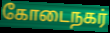
கோடைநகர்